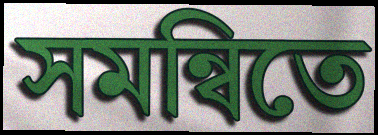
সমন্বিতে